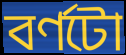
বৰ্ণটো